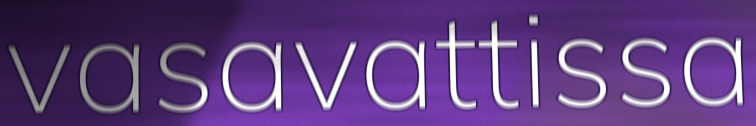
vasavattissa